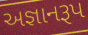
અજ્ઞાનરૂપ